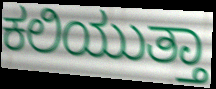
ಕಲಿಯುತ್ತಾ